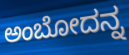
ಅಂಬೋದನ್ನ